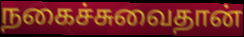
நகைச்சுவைதான்